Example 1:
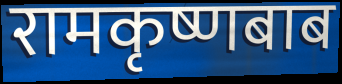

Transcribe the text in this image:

रामकृष्णबाब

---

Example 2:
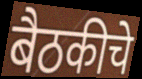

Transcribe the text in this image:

बैठकीचे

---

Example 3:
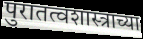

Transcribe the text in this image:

पुरातत्वशास्त्राच्या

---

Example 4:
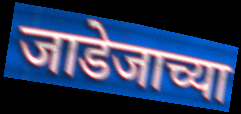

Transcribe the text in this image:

जाडेजाच्या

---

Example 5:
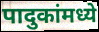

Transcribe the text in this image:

पादुकांमध्ये